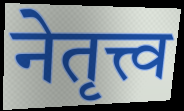
नेतृत्त्व